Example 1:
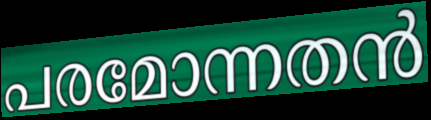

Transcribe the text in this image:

പരമോന്നതൻ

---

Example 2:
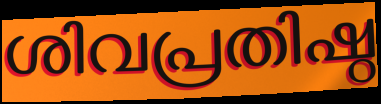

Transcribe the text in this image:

ശിവപ്രതിഷ്ഠ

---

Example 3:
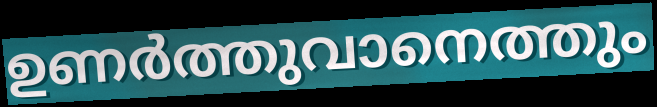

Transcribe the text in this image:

ഉണർത്തുവാനെത്തും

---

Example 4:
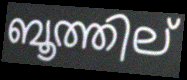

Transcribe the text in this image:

ബൂത്തില്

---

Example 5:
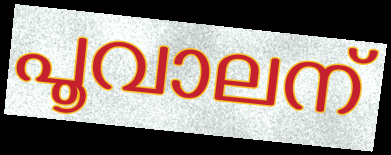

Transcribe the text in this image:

പൂവാലന്